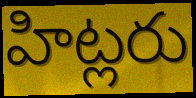
హిట్లరు